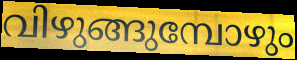
വിഴുങ്ങുമ്പോഴും